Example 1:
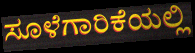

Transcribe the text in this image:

ಸೂಳೆಗಾರಿಕೆಯಲ್ಲಿ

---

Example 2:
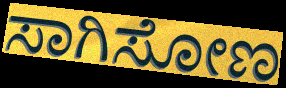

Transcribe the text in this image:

ಸಾಗಿಸೋಣ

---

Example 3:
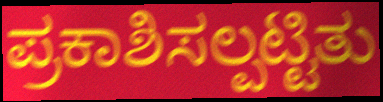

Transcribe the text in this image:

ಪ್ರಕಾಶಿಸಲ್ಪಟ್ಟಿತು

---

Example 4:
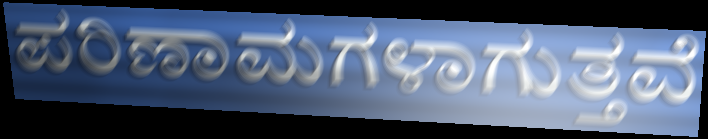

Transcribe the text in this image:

ಪರಿಣಾಮಗಳಾಗುತ್ತವೆ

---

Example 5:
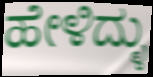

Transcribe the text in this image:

ಹೇಳಿದ್ಳು